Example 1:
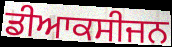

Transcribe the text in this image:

ਡੀਆਕਸੀਜਨ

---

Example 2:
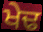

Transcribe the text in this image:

ਖੇਢ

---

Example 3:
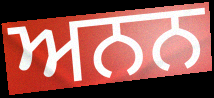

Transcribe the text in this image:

ਅਨਨ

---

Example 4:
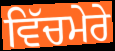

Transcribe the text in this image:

ਵਿੱਚਮੇਰੇ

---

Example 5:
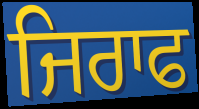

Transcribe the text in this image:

ਜਿਰਾਫ